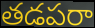
తడపరా